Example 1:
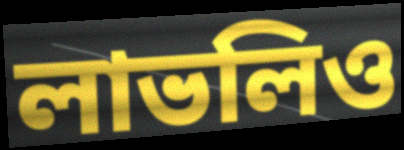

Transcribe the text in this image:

লাভলিও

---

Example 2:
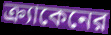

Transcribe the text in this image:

ক্র্যাকেনের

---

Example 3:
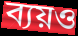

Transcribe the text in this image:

ব্যয়ও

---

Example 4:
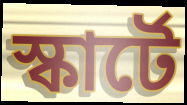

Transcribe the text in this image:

স্কার্টে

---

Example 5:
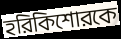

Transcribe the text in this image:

হরিকিশোরকে